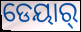
ଡେୟାର୍